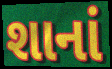
શાનાં